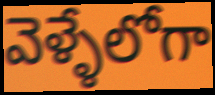
వెళ్ళేలోగా